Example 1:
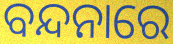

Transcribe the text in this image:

ବନ୍ଦନାରେ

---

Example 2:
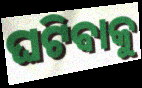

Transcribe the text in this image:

ଘଟିଵାକୁ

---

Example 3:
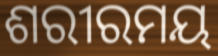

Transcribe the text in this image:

ଶରୀରମୟ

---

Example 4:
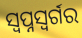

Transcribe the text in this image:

ସ୍ୱପ୍ନସ୍ୱର୍ଗର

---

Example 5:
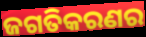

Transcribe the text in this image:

ଜଗତିକରଣର